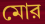
মোর